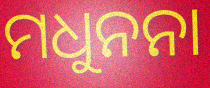
ମଧୁନନା